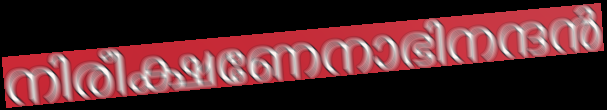
നിരീക്ഷണേനാഭിനന്ദൻ